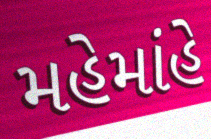
મહેમાંહે